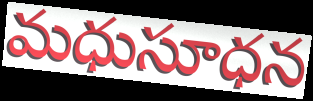
మధుసూధన